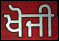
ਖੋਜੀ